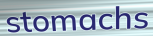
stomachs